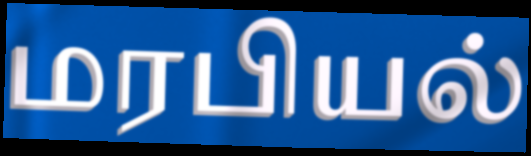
மரபியல்